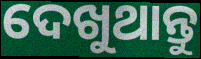
ଦେଖୁଥାନ୍ତୁ